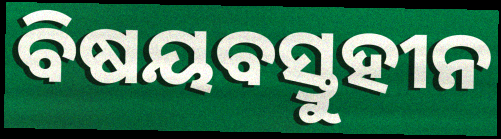
ବିଷୟବସ୍ତୁହୀନ